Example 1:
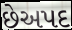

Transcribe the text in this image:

છેઅપદ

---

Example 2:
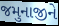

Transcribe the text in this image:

જમુનાજીને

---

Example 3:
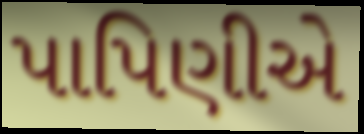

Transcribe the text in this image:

પાપિણીએ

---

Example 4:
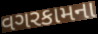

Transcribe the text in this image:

વગરકામના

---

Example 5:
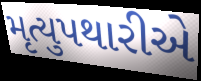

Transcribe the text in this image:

મૃત્યુપથારીએ